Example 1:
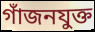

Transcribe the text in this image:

গাঁজনযুক্ত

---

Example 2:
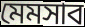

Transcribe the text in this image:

মেমসাব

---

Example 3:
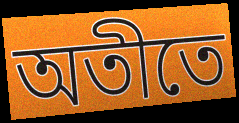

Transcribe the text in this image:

অতীতে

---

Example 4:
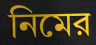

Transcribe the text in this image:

নিমের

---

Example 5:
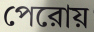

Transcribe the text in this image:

পেরোয়